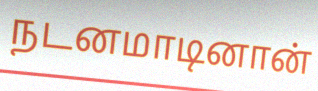
நடனமாடினான்